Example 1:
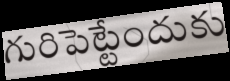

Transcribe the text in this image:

గురిపెట్టేందుకు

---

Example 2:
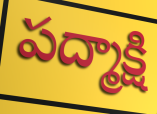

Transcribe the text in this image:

పద్మాక్షి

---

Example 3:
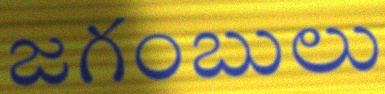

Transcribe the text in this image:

జగంబులు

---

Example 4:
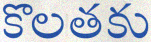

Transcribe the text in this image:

కొలతకు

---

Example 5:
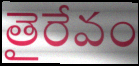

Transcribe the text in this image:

తైరేవం